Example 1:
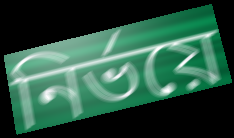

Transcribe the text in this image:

নিৰ্ভয়ে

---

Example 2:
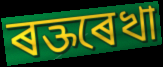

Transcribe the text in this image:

ৰক্তৰেখা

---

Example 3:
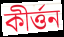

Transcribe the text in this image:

কীৰ্ত্তন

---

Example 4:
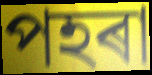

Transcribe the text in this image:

পহৰা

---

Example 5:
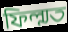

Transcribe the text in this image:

ফিল্মত